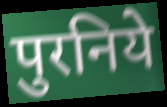
पुरनिये